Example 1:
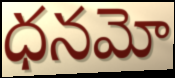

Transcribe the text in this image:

ధనమో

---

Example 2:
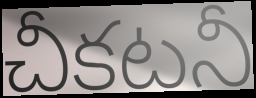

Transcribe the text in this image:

చీకటనీ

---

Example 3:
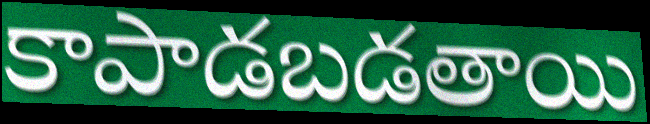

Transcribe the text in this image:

కాపాడబడతాయి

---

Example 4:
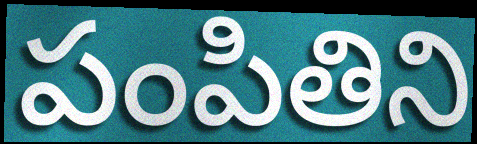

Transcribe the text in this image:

పంపితిని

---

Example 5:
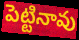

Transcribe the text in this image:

పెట్టినావు